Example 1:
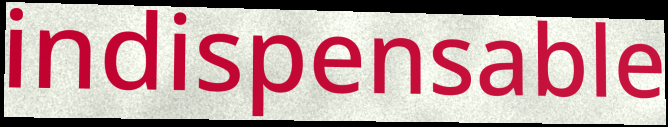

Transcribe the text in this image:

indispensable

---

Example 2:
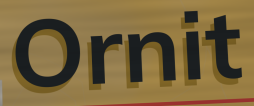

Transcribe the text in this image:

Ornit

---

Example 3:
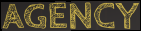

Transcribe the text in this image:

AGENCY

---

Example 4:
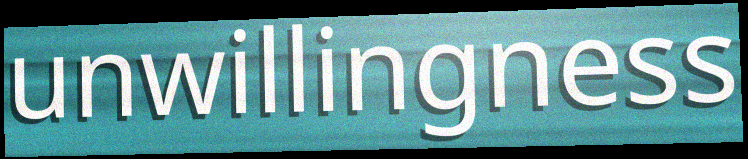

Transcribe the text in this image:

unwillingness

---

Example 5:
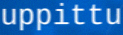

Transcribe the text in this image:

uppittu